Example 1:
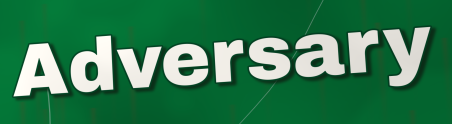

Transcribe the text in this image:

Adversary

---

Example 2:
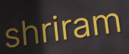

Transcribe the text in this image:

shriram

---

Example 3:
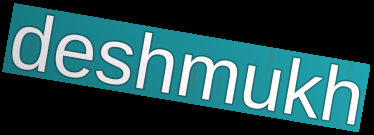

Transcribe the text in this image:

deshmukh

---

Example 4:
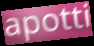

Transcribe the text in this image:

apotti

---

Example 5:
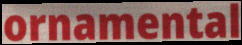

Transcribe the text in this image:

ornamental